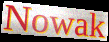
Nowak